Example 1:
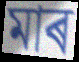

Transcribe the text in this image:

মাৰ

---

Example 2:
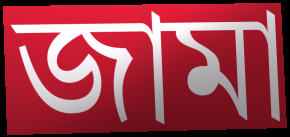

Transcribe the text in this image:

জামা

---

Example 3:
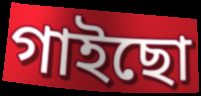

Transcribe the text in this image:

গাইছো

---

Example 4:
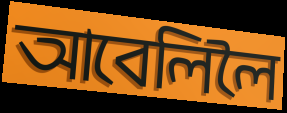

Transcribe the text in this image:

আবেলিলৈ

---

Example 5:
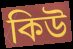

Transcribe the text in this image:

কিউ